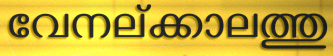
വേനല്ക്കാലത്തു